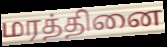
மரத்தினை